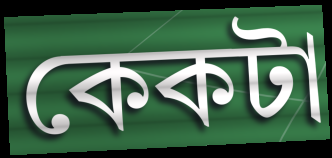
কেকটা